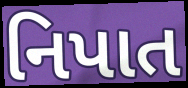
નિપાત